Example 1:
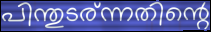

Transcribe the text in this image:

പിന്തുടര്ന്നതിന്റെ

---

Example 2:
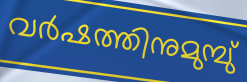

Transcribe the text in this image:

വർഷത്തിനുമുമ്പു്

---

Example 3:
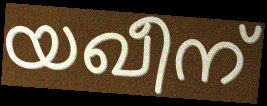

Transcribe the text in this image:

യഖീന്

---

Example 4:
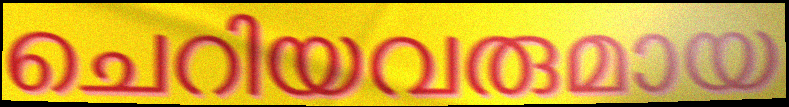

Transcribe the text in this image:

ചെറിയവരുമായ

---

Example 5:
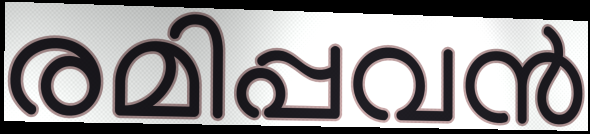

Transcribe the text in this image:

രമിപ്പവൻ